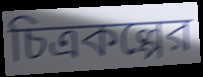
চিত্রকল্পের